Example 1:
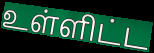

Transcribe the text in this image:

உள்ளிட்ட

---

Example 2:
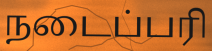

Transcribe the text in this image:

நடைப்பரி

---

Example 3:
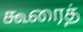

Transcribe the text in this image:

கூரைத்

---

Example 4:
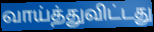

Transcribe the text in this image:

வாய்த்துவிட்டது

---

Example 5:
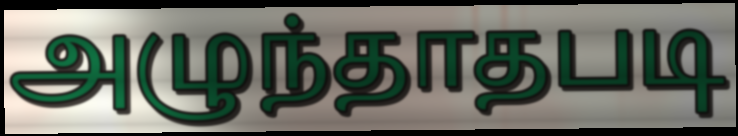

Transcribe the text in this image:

அழுந்தாதபடி